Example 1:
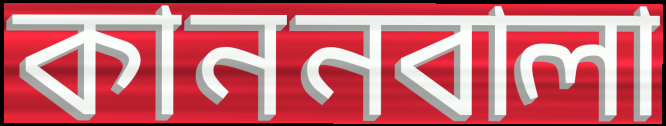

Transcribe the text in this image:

কাননবালা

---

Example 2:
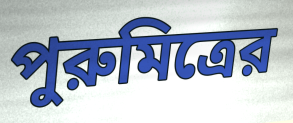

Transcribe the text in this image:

পুরুমিত্রের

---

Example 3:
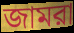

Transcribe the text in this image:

জামরা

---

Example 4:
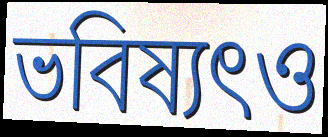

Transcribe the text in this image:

ভবিষ্যৎও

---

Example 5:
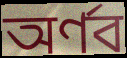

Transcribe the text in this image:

অর্ণব